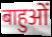
बाहुओं